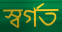
স্বর্গত